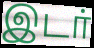
இடர்